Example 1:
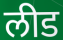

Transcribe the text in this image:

लीड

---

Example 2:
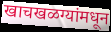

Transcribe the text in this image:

खाचखळग्यांमधून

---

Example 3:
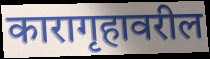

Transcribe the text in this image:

कारागृहावरील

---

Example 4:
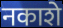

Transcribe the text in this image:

नकाशे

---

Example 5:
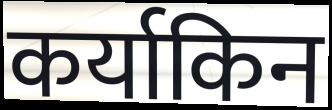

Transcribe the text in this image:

कर्याकिन